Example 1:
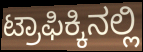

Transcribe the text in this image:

ಟ್ರಾಫಿಕ್ಕಿನಲ್ಲಿ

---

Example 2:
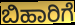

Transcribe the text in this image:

ಬಿಹಾರಿಗೆ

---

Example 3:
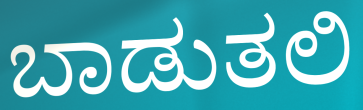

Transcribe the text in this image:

ಬಾಡುತಲಿ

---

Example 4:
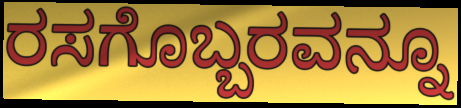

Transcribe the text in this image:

ರಸಗೊಬ್ಬರವನ್ನೂ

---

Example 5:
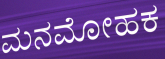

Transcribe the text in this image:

ಮನಮೋಹಕ